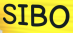
SIBO